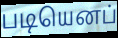
படியெனப்